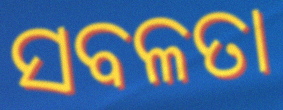
ସବଳତା